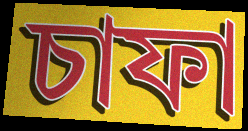
চাফা